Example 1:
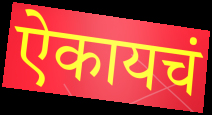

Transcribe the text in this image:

ऐकायचं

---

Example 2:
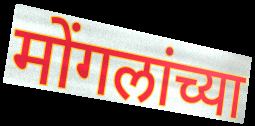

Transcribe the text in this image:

मोंगलांच्या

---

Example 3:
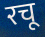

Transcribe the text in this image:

रचू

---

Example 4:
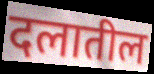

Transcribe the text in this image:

दलातील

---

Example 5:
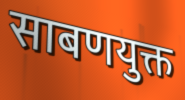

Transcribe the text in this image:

साबणयुक्त